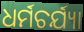
ଧର୍ମଚର୍ଯ୍ୟା